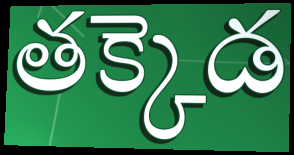
తక్కెడ